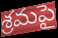
శ్రమపై